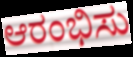
ಆರಂಭಿಸು